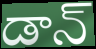
డాన్